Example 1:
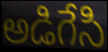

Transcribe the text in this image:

అడిగేసి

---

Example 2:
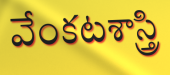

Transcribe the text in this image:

వేంకటశాస్త్రి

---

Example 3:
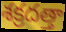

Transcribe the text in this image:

శక్రదత్తా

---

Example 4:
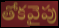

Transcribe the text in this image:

తోకవైపు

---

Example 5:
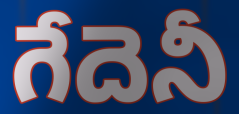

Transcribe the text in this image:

గేదెనీ